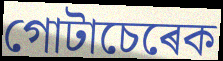
গোটাচেৰেক